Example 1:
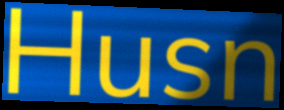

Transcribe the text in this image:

Husn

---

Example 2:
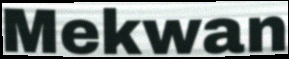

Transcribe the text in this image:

Mekwan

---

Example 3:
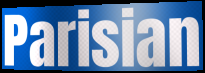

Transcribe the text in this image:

Parisian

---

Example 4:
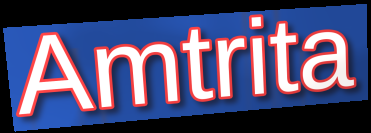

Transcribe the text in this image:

Amtrita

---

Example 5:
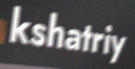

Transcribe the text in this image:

kshatriy